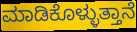
ಮಾಡಿಕೊಳ್ಳುತ್ತಾನೆ